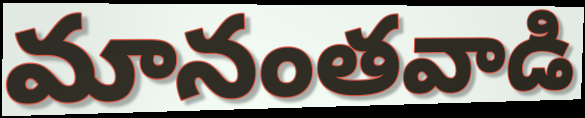
మానంతవాడి